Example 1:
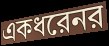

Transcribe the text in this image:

একধরেনর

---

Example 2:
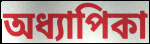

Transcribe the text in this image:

অধ্যাপিকা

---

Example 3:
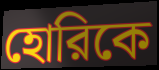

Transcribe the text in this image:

হোরিকে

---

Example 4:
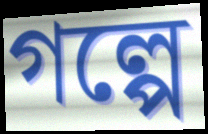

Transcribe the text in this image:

গল্পে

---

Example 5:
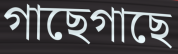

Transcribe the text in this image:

গাছেগাছে